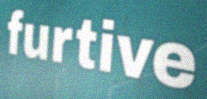
furtive